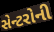
સેન્ટરોની